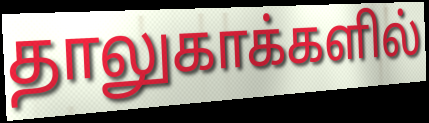
தாலுகாக்களில்